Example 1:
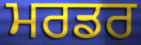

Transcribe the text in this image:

ਮਰਡਰ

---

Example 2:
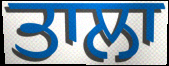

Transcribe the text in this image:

ਤਾਲਾ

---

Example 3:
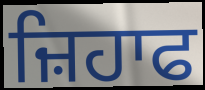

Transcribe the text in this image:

ਜ਼ਿਹਾਫ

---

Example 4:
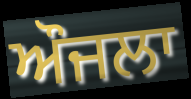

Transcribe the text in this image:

ਔਜਲਾ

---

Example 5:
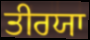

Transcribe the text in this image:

ਤੀਰਯਾ